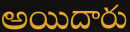
అయిదారు